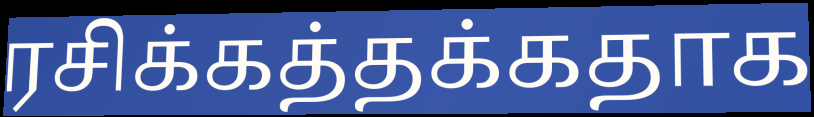
ரசிக்கத்தக்கதாக